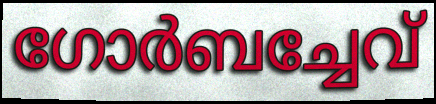
ഗോർബച്ചേവ്